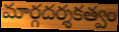
మార్గదర్శకత్వం